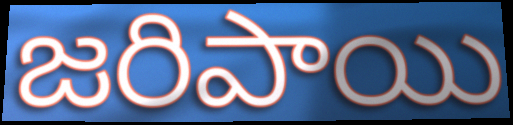
జరిపాయి